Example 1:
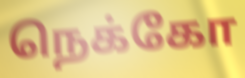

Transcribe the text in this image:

நெக்கோ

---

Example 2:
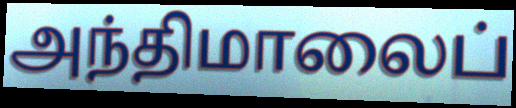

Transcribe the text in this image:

அந்திமாலைப்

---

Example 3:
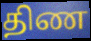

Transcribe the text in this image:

திண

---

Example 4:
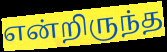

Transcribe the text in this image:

என்றிருந்த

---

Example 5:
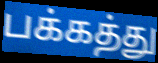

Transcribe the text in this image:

பக்கத்து